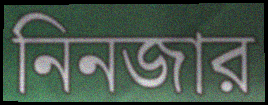
নিনজার